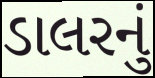
ડાલરનું